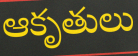
ఆకృతులు